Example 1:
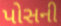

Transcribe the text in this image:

પોસની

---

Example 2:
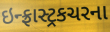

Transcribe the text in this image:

ઇન્ફ્રાસ્ટ્રકચરના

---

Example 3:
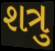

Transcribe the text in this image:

શત્રુ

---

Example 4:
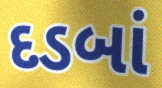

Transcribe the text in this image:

દડબાં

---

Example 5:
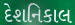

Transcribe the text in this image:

દેશનિકાલ